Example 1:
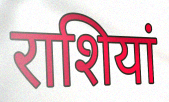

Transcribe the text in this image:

राशियां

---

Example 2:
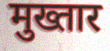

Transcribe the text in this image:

मुख्तार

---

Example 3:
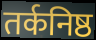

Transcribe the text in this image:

तर्कनिष्ठ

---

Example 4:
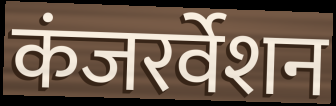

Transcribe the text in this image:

कंजरर्वेशन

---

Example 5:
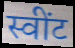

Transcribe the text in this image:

स्वींट